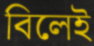
বিলেই